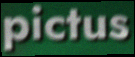
pictus